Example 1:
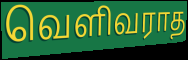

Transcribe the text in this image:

வெளிவராத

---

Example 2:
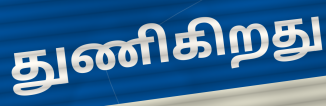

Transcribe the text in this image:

துணிகிறது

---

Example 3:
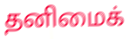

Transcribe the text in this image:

தனிமைக்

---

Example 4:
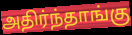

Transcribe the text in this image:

அதிர்ந்தாங்கு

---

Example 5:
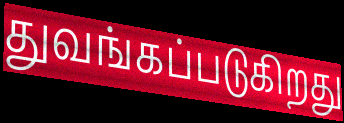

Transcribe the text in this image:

துவங்கப்படுகிறது